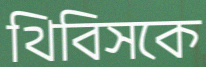
থিবিসকে